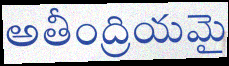
అతీంద్రియమై